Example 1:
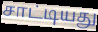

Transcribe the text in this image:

சாட்டியது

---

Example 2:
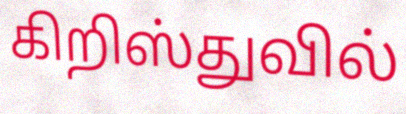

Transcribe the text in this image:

கிறிஸ்துவில்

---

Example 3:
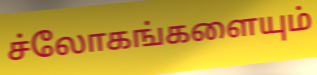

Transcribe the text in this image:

ச்லோகங்களையும்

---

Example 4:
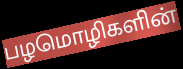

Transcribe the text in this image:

பழமொழிகளின்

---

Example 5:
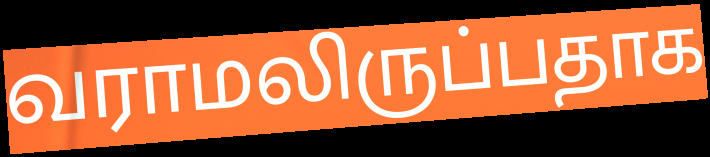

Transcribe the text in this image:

வராமலிருப்பதாக